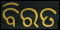
ବିରତ